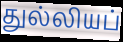
துல்லியப்